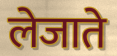
लेजाते